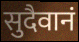
सुदैवानं